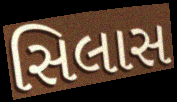
સિલાસ